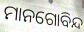
ମାନଗୋବିନ୍ଦ